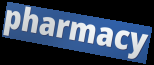
pharmacy